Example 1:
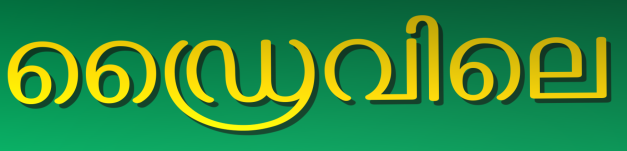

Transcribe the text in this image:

ഡ്രൈവിലെ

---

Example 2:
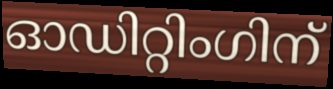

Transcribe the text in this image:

ഓഡിറ്റിംഗിന്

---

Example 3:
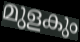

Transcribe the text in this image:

മുളകും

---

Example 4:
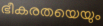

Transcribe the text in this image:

ഭീകരതയെയും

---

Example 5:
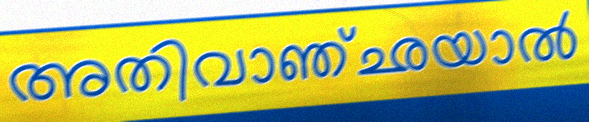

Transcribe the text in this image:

അതിവാഞ്ഛയാൽ